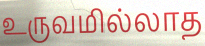
உருவமில்லாத